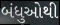
બંધુઓથી